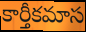
కార్తీకమాస